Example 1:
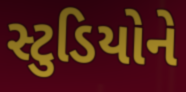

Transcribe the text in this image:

સ્ટુડિયોને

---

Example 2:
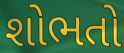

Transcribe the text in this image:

શોભતો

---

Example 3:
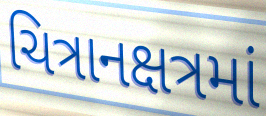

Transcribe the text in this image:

ચિત્રાનક્ષત્રમાં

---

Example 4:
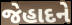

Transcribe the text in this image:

જેહાદને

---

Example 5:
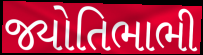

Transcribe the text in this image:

જ્યોતિભાભી